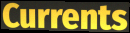
Currents